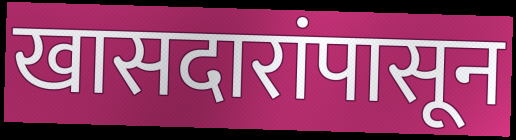
खासदारांपासून